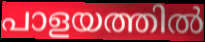
പാളയത്തിൽ